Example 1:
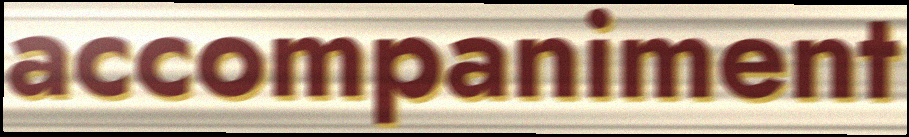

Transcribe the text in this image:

accompaniment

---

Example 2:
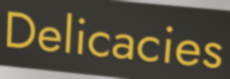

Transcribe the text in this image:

Delicacies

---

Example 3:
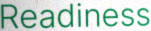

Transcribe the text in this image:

Readiness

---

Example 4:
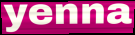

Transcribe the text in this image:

yenna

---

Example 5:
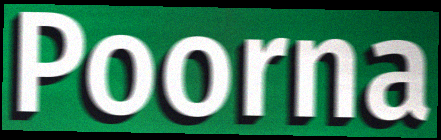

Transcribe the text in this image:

Poorna